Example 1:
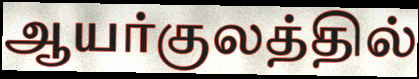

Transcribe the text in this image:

ஆயர்குலத்தில்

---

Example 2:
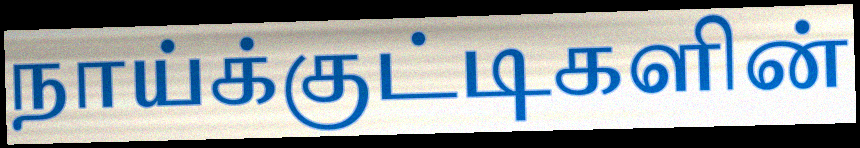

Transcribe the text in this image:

நாய்க்குட்டிகளின்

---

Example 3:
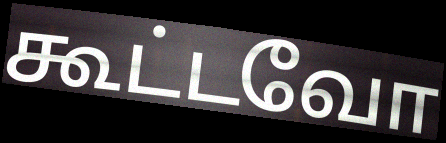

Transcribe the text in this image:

கூட்டவோ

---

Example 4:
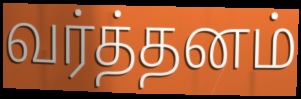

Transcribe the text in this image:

வர்த்தனம்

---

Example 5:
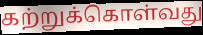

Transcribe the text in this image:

கற்றுக்கொள்வது